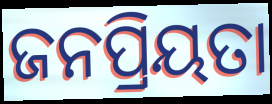
ଜନପ୍ରିୟତା